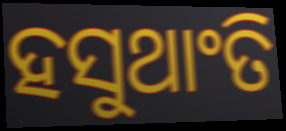
ହସୁଥାଂତି